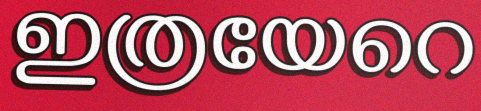
ഇത്രയേറെ